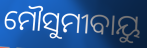
ମୌସୁମୀବାୟୁ